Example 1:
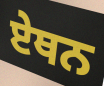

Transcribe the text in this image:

ਏਥਨ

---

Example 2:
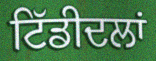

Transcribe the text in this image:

ਟਿੱਡੀਦਲਾਂ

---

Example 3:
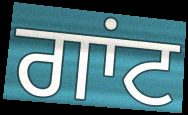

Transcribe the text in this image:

ਗਾਂਟ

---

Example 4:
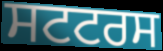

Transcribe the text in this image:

ਸਟਟਰਸ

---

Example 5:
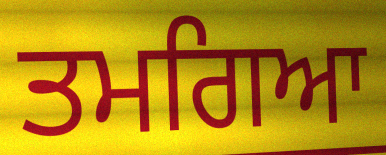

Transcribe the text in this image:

ਤਮਗਿਆ